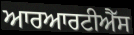
ਆਰਆਰਟੀਐੱਸ